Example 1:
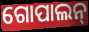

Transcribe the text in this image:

ଗୋପାଲନ୍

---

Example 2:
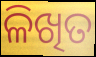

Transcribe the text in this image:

ଳିଖିତ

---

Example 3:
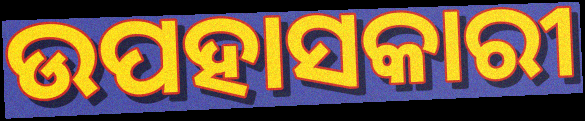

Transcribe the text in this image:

ଉପହାସକାରୀ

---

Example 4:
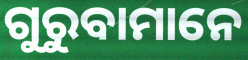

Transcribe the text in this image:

ଗୁରୁବାମାନେ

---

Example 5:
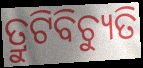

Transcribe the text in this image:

ତ୍ରୁଟିବିଚ୍ୟୁତି